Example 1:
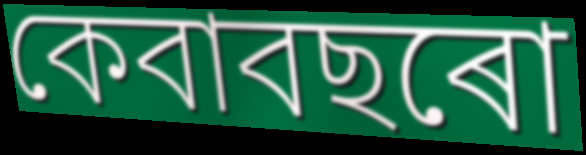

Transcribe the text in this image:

কেবাবছৰো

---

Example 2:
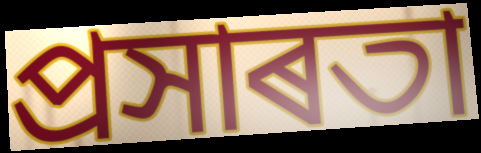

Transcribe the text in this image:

প্ৰসাৰতা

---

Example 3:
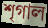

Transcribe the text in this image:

শৃগাল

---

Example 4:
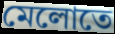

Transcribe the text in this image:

মেলোতে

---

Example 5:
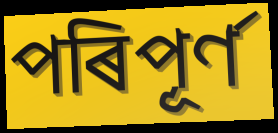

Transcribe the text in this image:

পৰিপূৰ্ণ